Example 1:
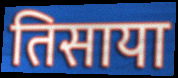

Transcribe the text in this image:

तिसाया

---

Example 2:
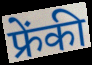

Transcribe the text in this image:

फ्रेंकी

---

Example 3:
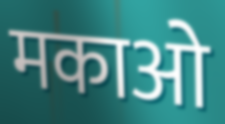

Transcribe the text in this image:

मकाओ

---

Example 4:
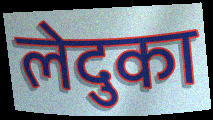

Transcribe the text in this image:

लेदुका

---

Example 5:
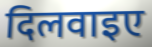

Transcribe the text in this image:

दिलवाइए